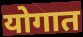
योगात